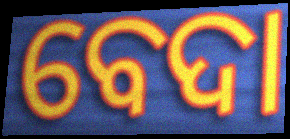
ବେଦା